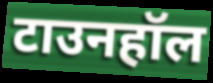
टाउनहॉल